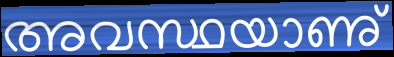
അവസ്ഥയാണു്